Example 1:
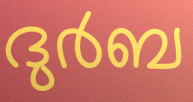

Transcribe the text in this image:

ദുർബ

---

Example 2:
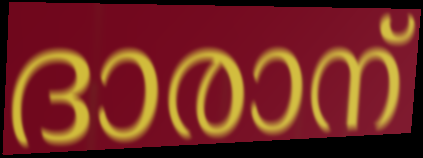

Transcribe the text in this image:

ദാരാന്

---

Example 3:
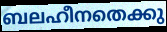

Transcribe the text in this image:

ബലഹീനതെക്കു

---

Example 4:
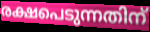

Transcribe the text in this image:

രക്ഷപെടുന്നതിന്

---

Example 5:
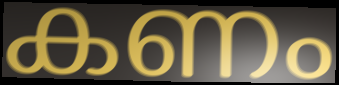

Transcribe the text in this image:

കണം